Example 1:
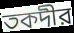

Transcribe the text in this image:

তকদীর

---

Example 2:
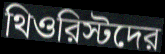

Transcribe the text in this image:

থিওরিস্টদের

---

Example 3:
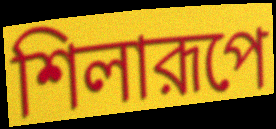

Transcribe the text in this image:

শিলারূপে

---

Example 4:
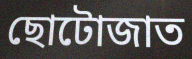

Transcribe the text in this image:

ছোটোজাত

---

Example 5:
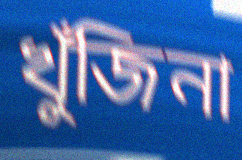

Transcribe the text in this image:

খুঁজিনা